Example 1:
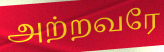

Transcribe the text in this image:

அற்றவரே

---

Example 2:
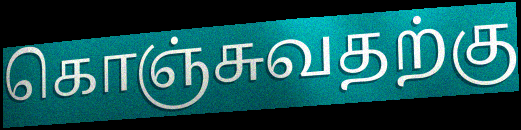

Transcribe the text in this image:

கொஞ்சுவதற்கு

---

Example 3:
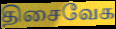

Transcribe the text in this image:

திசைவேக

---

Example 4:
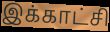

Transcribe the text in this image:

இக்காட்சி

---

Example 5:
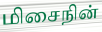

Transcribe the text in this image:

மிசைநின்